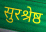
सुरश्रेष्ठ